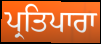
ਪ੍ਰਤਿਪਾਰਾ